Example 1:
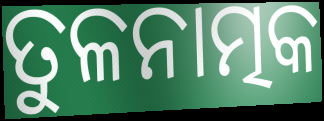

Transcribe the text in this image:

ତୁଳନାତ୍ମକ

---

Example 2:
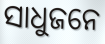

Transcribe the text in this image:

ସାଧୁଜନେ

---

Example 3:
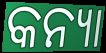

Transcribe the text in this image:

କନ୍ୟା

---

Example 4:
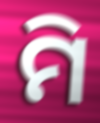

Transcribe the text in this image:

ମି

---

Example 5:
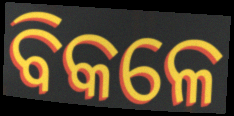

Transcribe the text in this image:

ବିକଳେ